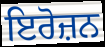
ਇਰੋਜ਼ਨ